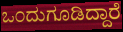
ಒಂದುಗೂಡಿದ್ದಾರೆ